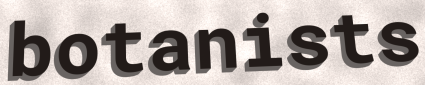
botanists